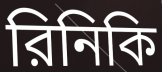
রিনিকি